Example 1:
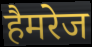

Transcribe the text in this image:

हैमरेज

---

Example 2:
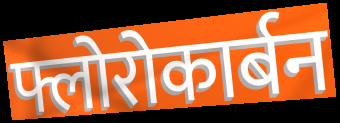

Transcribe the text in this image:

फ्लोरोकार्बन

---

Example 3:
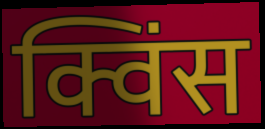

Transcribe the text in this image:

क्विंस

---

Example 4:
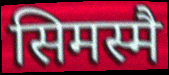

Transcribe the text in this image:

सिमस्मै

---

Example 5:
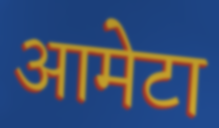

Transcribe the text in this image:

आमेटा